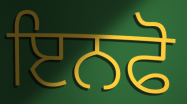
ਇਨਫੋ